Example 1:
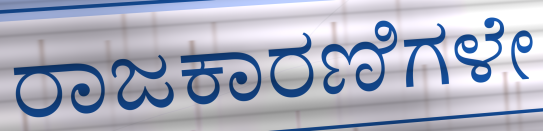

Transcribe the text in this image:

ರಾಜಕಾರಣಿಗಳೇ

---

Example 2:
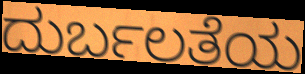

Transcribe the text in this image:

ದುರ್ಬಲತೆಯ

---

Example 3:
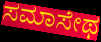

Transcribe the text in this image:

ಸಮಾಸೇಥ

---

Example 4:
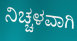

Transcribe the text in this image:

ನಿಚ್ಚಳವಾಗಿ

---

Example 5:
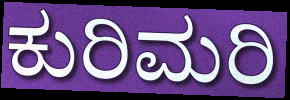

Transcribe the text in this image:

ಕುರಿಮರಿ